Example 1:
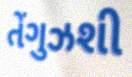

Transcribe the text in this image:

તેંગુઝશી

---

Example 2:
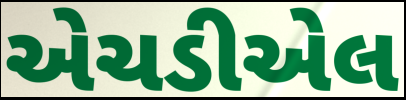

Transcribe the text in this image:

એચડીએલ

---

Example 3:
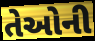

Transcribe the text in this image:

તેઓની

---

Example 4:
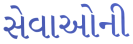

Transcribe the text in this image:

સેવાઓની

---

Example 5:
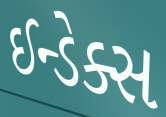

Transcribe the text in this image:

ઈન્ડેક્સ